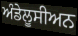
ਅੰਡੇਲੂਸੀਅਨ